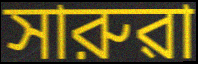
সাৰুৱা